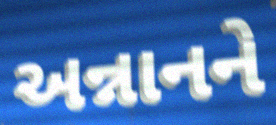
અન્નાનને